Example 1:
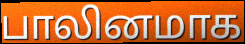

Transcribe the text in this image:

பாலினமாக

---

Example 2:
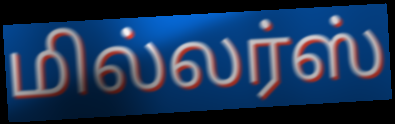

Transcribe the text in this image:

மில்லர்ஸ்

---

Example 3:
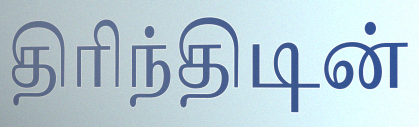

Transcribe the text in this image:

திரிந்திடின்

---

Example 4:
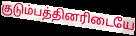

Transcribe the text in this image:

குடும்பத்தினரிடையே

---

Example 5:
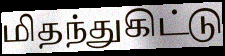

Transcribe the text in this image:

மிதந்துகிட்டு